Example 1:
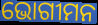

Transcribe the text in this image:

ଭୋଗୀମନ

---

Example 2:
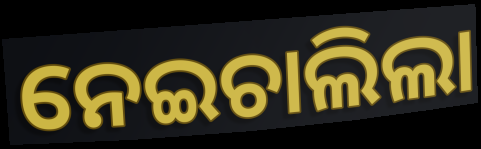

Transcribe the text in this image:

ନେଇଚାଲିଲା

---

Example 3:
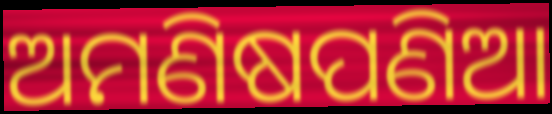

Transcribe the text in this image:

ଅମଣିଷପଣିଆ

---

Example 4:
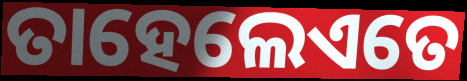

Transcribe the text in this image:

ତାହେଲେଏତେ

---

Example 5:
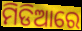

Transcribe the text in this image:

ମିଡିଆରେ